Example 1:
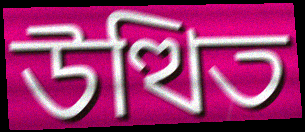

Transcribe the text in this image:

উত্থিত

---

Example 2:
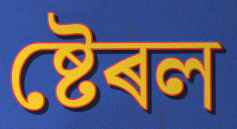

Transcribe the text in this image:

ষ্টেৰল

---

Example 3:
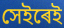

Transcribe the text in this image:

সেইৰেই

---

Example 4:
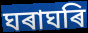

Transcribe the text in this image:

ঘৰাঘৰি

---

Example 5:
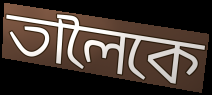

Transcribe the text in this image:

তালৈকে